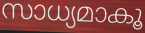
സാധ്യമാകൂ